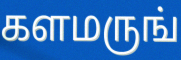
களமருங்